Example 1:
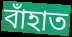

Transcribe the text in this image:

বাঁহাত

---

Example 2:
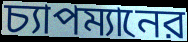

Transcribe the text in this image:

চ্যাপম্যানের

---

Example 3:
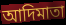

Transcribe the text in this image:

আদিমাতা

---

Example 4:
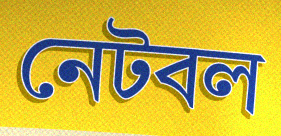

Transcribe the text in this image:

নেটবল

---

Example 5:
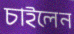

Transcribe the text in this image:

চাইলেন